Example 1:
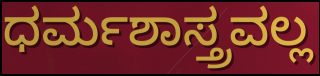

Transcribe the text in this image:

ಧರ್ಮಶಾಸ್ತ್ರವಲ್ಲ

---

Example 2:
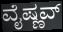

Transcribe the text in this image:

ವೈಷ್ಣವ್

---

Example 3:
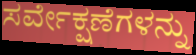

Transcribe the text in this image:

ಸರ್ವೇಕ್ಷಣೆಗಳನ್ನು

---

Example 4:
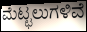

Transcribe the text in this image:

ಮೆಟ್ಟಲುಗಳಿವೆ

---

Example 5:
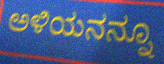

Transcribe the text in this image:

ಅಳಿಯನನ್ನೂ